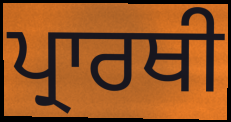
ਪ੍ਰਾਰਥੀ